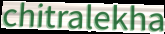
chitralekha